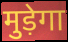
मुड़ेगा